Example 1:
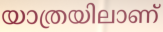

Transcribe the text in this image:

യാത്രയിലാണ്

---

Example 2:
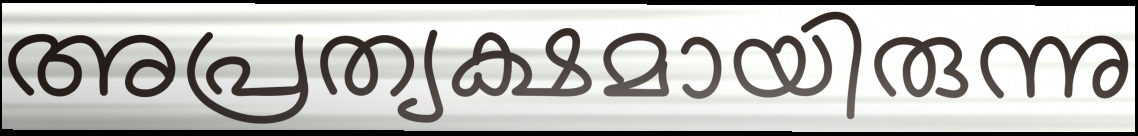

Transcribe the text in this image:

അപ്രത്യക്ഷമായിരുന്നു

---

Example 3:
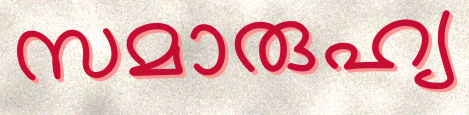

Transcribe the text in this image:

സമാരുഹ്യ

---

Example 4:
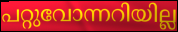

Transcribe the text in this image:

പറ്റുവോന്നറിയില്ല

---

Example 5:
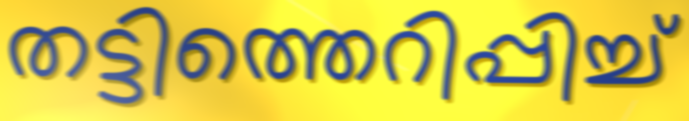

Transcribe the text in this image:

തട്ടിത്തെറിപ്പിച്ച്